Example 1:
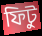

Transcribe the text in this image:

ফিটু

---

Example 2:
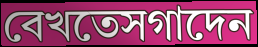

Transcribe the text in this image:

বেখতেসগাদেন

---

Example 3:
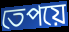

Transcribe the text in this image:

তেপয়ে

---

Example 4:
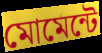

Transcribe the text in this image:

মোমেন্টে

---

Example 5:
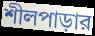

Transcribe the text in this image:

শীলপাড়ার